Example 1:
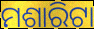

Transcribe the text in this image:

ମଶାରିଟା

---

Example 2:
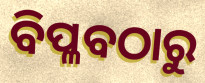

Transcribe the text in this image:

ବିପ୍ଳବଠାରୁ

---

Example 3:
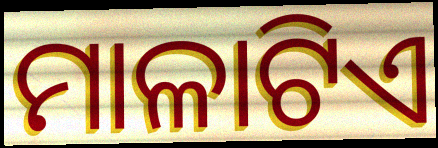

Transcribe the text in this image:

ମାଳାଟିଏ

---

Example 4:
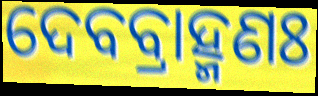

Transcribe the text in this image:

ଦେବବ୍ରାହ୍ମଣଃ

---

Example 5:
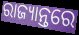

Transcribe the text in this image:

ରାଜ୍ୟାନ୍ତରେ